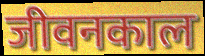
जीवनकाल